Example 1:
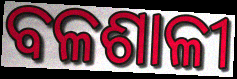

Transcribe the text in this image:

ବଳଶାଳୀ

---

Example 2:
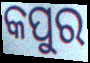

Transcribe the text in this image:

କପୁର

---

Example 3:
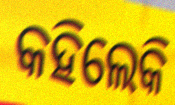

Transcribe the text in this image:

କହିଲେକି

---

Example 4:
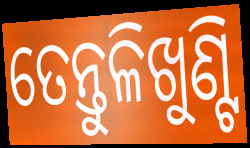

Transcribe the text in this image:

ତେନ୍ତୁଳିଖୁଣ୍ଟି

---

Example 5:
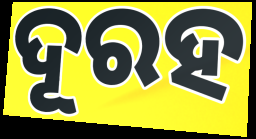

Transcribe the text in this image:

ଦୂରହ